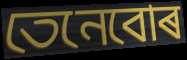
তেনেবোৰ